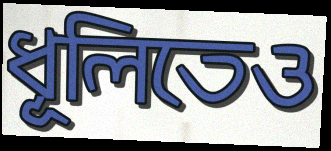
ধূলিতেও